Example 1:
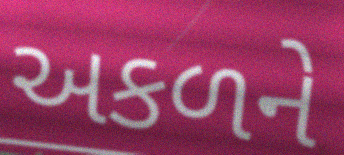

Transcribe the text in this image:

અકળને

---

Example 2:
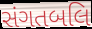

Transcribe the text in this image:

સંગતબલિ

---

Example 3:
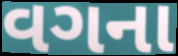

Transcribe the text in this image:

વગના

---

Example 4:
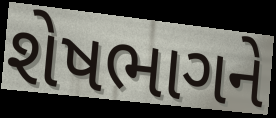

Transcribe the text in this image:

શેષભાગને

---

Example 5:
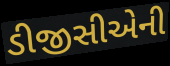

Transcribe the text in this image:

ડીજીસીએની